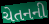
ચેતનની